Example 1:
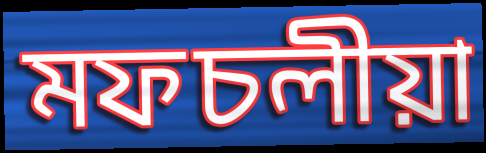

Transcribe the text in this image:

মফচলীয়া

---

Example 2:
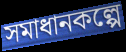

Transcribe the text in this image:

সমাধানকল্পে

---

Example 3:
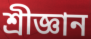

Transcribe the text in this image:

শ্ৰীজ্ঞান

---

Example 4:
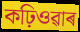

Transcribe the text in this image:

কঢ়িওৱাৰ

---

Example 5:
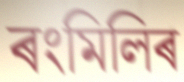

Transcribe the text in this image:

ৰংমিলিৰ